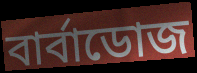
বার্বাডোজ